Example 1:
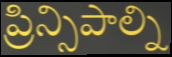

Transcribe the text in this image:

ప్రిన్సిపాల్ని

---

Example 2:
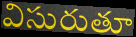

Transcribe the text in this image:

విసురుతూ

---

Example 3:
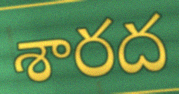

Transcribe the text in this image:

శారద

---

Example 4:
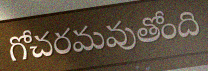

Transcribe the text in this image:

గోచరమవుతోంది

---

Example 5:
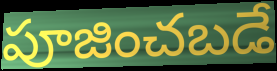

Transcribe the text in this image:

పూజించబడే